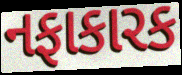
નફાકારક